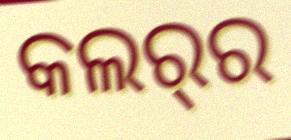
କଲର୍‌ର